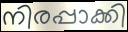
നിരപ്പാക്കി